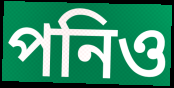
পনিও